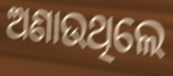
ଅଣାଉଥିଲେ